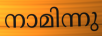
നാമിന്നു